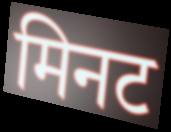
मिनट